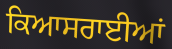
ਕਿਆਸਰਾਈਆਂ